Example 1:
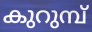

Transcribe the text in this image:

കുറുമ്പ്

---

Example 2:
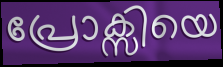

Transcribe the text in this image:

പ്രോക്സിയെ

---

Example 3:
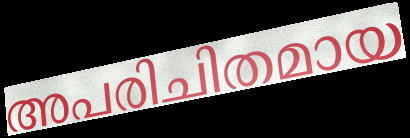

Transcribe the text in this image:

അപരിചിതമായ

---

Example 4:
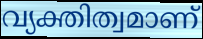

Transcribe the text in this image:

വ്യക്തിത്വമാണ്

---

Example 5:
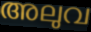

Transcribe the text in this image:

അലുവ